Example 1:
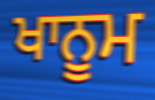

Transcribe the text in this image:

ਖਾਨੂਮ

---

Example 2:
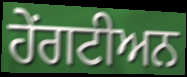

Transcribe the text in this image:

ਹੇਂਗਟੀਅਨ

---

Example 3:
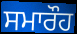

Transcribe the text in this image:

ਸਮਾਰੌਹ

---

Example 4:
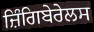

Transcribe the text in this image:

ਜ਼ਿੰਗਿਬੇਰੇਲਸ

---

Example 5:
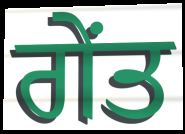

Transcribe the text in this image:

ਗੇਂਤ